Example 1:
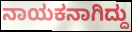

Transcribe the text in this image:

ನಾಯಕನಾಗಿದ್ದು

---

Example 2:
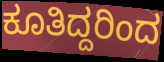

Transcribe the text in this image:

ಕೂತಿದ್ದರಿಂದ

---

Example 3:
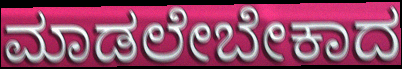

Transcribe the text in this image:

ಮಾಡಲೇಬೇಕಾದ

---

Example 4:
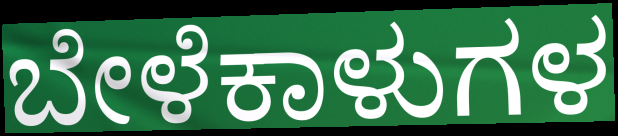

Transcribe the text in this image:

ಬೇಳೆಕಾಳುಗಳ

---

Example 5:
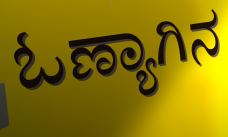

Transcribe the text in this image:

ಓಣ್ಯಾಗಿನ